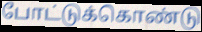
போட்டுக்கொண்டு